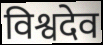
विश्वदेव